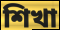
শিখা